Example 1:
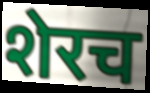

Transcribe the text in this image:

शेरच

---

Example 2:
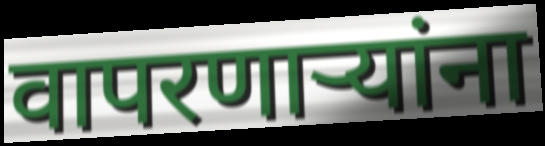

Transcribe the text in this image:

वापरणाऱ्यांना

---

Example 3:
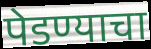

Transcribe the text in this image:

पेडण्याचा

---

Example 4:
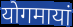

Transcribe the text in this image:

योगमायां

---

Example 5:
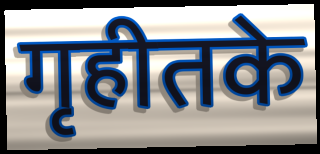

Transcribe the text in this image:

गृहीतके